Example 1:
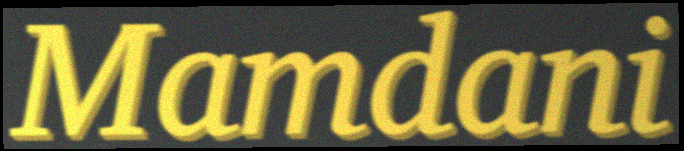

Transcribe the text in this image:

Mamdani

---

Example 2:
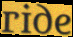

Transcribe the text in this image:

ride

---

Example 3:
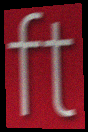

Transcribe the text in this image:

ft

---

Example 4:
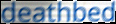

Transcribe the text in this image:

deathbed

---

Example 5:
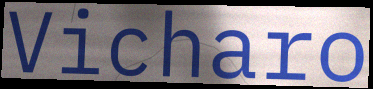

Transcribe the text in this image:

Vicharo